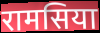
रामसिया